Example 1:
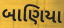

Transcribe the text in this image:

બાણિયા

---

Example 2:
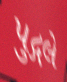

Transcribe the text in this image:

પુદ્ગલે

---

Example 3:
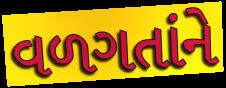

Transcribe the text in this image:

વળગતાંને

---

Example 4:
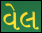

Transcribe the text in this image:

વેલ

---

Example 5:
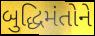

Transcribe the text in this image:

બુદ્ધિમંતોને